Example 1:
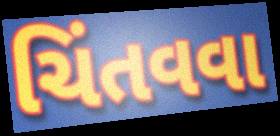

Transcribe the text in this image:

ચિંતવવા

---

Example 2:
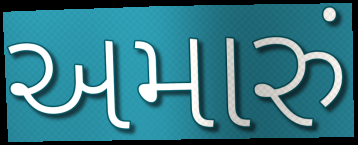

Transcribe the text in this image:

અમારું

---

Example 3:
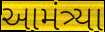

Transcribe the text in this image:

આમંત્ર્યા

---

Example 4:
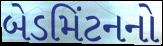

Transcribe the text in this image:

બેડમિંટનનો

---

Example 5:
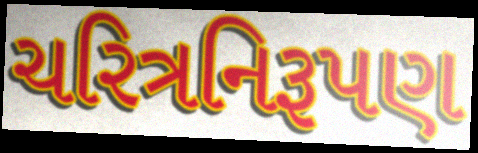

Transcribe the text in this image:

ચરિત્રનિરૂપણ